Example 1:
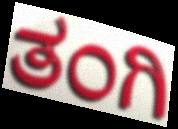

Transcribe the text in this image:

ತಂಗಿ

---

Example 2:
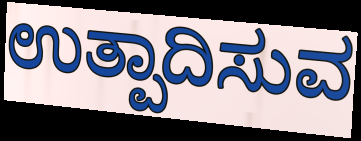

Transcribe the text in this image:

ಉತ್ಪಾದಿಸುವ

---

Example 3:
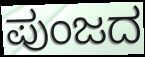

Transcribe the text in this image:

ಪುಂಜದ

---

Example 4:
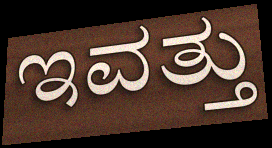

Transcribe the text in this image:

ಇವತ್ತು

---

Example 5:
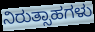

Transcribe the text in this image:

ನಿರುತ್ಸಾಹಗಳು